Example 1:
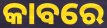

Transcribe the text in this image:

କାବରେ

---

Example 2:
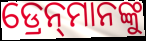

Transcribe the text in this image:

ଡ୍ରେନ୍‌ମାନଙ୍କୁ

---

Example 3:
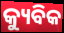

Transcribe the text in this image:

କ୍ୟୁବିକ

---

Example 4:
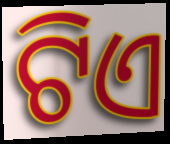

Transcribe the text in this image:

ଟିଏ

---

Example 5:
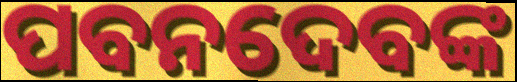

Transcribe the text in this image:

ପବନଦେବଙ୍କ